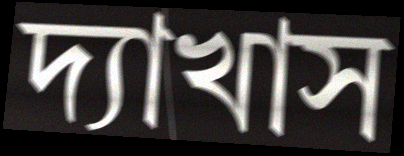
দ্যাখাস